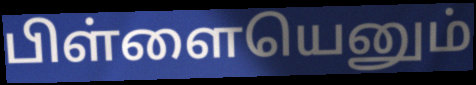
பிள்ளையெனும்